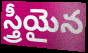
స్త్రీయైన